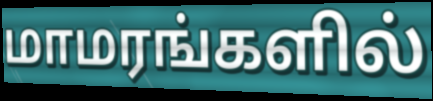
மாமரங்களில்